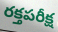
రక్తపరీక్ష